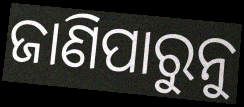
ଜାଣିପାରୁନୁ